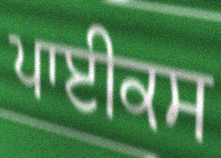
ਪਾਈਕਸ